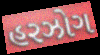
હરઝોગ